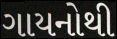
ગાયનોથી